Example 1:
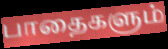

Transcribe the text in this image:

பாதைகளும்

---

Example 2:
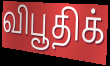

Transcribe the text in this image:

விபூதிக்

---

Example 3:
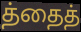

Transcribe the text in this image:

த்தைத்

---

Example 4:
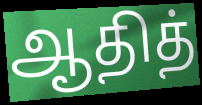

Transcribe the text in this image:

ஆதித்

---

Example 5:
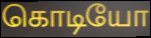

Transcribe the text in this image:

கொடியோ